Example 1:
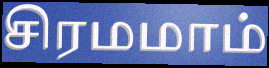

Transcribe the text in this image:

சிரமமாம்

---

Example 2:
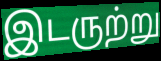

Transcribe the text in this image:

இடருற்று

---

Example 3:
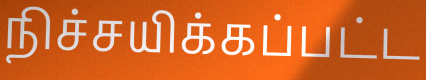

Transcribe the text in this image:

நிச்சயிக்கப்பட்ட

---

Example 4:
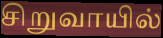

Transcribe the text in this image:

சிறுவாயில்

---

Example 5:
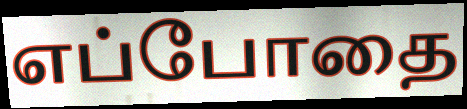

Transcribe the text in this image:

எப்போதை